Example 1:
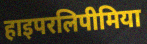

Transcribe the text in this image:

हाइपरलिपीमिया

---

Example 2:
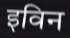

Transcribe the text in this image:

इविन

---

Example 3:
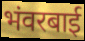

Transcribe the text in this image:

भंवरबाई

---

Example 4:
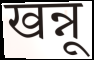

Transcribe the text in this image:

खन्नू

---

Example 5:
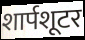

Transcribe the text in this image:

शार्पशूटर